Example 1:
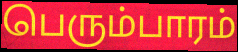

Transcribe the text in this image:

பெரும்பாரம்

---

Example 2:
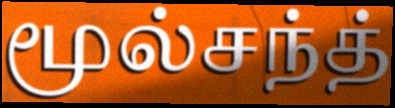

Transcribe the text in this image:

மூல்சந்த்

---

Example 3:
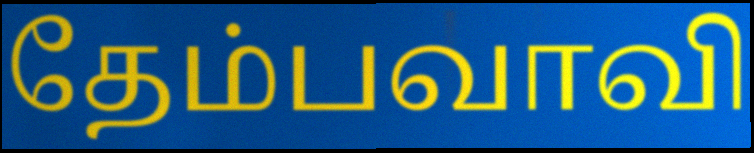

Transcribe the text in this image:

தேம்பவாவி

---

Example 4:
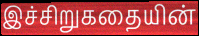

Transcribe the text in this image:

இச்சிறுகதையின்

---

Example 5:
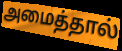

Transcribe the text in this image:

அமைத்தால்